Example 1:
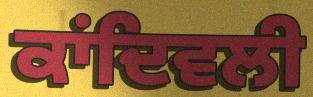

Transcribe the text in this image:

ਕਾਂਦਿਵਲੀ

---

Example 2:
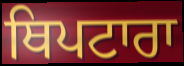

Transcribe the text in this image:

ਥਿਪਟਾਰਾ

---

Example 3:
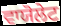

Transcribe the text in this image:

ਵਾਯੋਲੇਟ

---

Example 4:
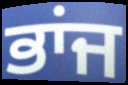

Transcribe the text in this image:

ਭਾਂਜ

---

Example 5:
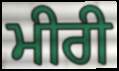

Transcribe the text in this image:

ਮੀਰੀ